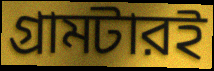
গ্রামটারই